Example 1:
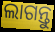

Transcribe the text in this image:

ଲାଗନ୍ତୁ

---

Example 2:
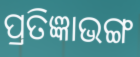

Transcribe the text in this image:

ପ୍ରତିଜ୍ଞାଭଙ୍ଗ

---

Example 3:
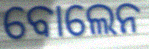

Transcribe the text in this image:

ବୋଲେନ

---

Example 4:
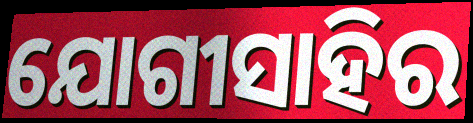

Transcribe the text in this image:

ଯୋଗୀସାହିର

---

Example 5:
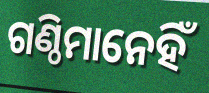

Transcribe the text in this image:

ଗଣ୍ଠିମାନେହିଁ